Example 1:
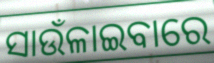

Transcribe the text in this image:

ସାଉଁଳାଇବାରେ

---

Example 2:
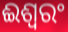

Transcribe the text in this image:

ଈଶ୍ୱରଂ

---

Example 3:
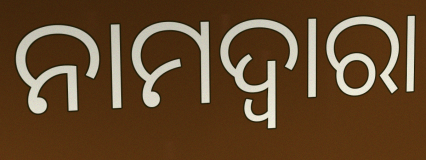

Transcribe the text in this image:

ନାମଦ୍ଵାରା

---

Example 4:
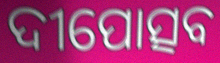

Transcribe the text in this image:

ଦୀପୋତ୍ସବ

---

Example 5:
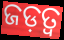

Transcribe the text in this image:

ଜଡ଼ତ୍ଵ